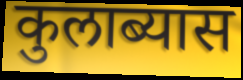
कुलाब्यास